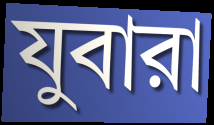
যুবারা